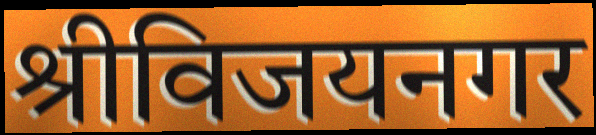
श्रीविजयनगर